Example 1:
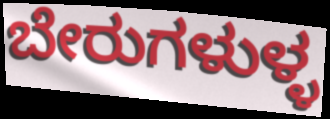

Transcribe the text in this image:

ಬೇರುಗಳುಳ್ಳ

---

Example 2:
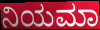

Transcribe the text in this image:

ನಿಯಮಾ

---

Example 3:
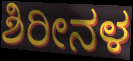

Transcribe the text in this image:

ಶಿರೀನಳ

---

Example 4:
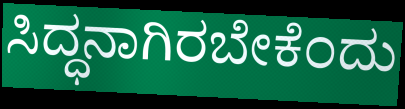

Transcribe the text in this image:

ಸಿದ್ಧನಾಗಿರಬೇಕೆಂದು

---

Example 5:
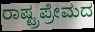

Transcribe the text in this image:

ರಾಷ್ಟ್ರಪ್ರೇಮದ